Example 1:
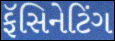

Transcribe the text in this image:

ફૅસિનેટિંગ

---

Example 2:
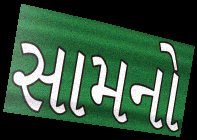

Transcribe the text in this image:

સામનો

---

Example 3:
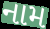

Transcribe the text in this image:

નામ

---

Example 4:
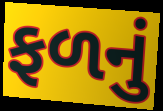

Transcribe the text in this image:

ફળનું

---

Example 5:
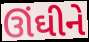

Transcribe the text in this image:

ઊંઘીને